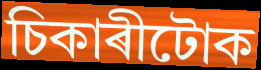
চিকাৰীটোক